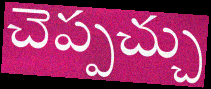
చెప్పచ్చు